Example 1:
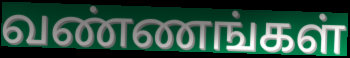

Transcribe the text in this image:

வண்ணங்கள்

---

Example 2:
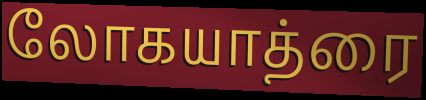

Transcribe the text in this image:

லோகயாத்ரை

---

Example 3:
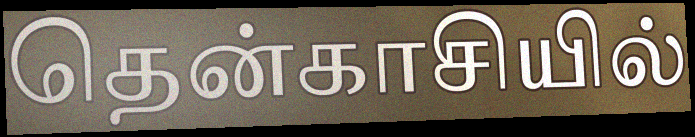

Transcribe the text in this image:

தென்காசியில்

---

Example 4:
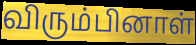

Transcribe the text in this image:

விரும்பினாள்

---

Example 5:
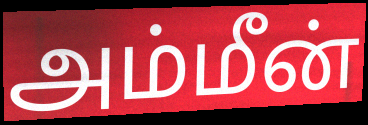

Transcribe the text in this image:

அம்மீன்